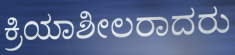
ಕ್ರಿಯಾಶೀಲರಾದರು